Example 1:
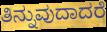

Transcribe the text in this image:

ತಿನ್ನುವುದಾದರೆ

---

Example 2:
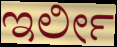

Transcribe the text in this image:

ಇರ್ಲೀ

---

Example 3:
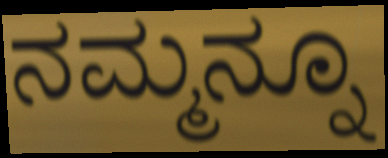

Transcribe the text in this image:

ನಮ್ಮನ್ನೂ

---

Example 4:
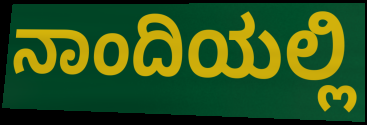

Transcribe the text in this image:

ನಾಂದಿಯಲ್ಲಿ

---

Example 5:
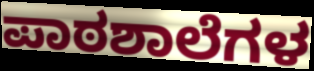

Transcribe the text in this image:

ಪಾಠಶಾಲೆಗಳ